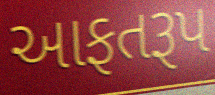
આફતરૂપ